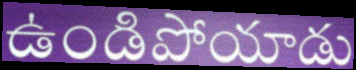
ఉండిపోయాడు